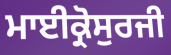
ਮਾਈਕ੍ਰੋਸੁਰਜੀ